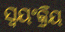
ସ୍ୱୟଂକ୍ରିୟ